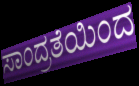
ಸಾಂದ್ರತೆಯಿಂದ